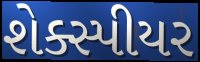
શેક્સ્પીયર